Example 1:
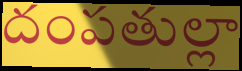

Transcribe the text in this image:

దంపతుల్లా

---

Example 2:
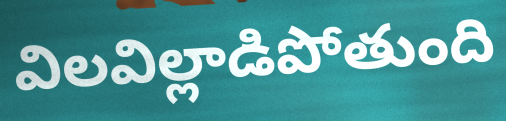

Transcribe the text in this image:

విలవిల్లాడిపోతుంది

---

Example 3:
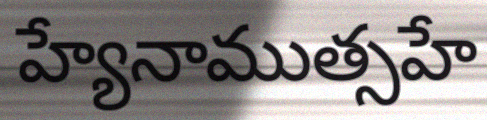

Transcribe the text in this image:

హ్యేనాముత్సహే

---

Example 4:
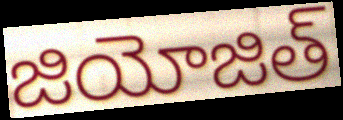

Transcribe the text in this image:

జియోజిత్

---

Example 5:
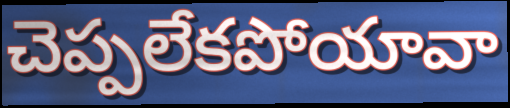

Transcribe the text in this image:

చెప్పలేకపోయావా